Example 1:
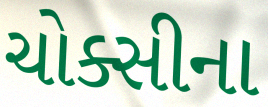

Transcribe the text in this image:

ચોક્સીના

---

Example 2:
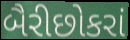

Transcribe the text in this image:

બૈરીછોકરાં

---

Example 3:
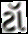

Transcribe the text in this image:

ટૉ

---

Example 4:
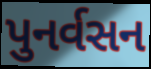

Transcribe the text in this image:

પુનર્વસન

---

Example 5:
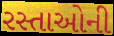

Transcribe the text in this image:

રસ્તાઓની